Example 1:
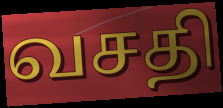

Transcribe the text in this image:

வசதி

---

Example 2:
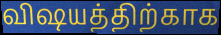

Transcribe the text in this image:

விஷயத்திற்காக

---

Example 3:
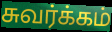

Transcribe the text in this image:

சுவர்க்கம்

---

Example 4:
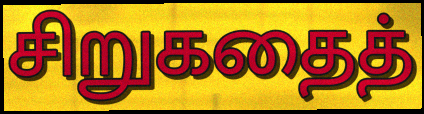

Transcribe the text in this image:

சிறுகதைத்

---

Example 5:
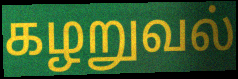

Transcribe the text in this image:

கழறுவல்